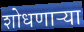
शोधणाऱ्या